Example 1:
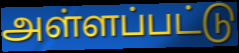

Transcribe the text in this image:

அள்ளப்பட்டு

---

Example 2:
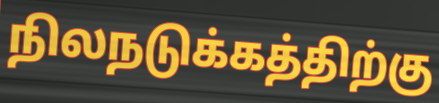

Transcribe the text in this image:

நிலநடுக்கத்திற்கு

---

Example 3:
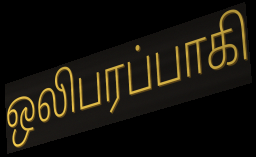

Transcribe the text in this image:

ஒலிபரப்பாகி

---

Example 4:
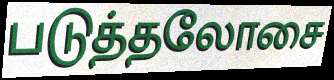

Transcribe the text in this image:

படுத்தலோசை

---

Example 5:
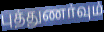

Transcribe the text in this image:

புத்துணர்வும்